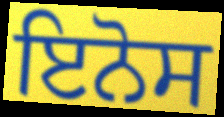
ਇਨੋਸ